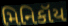
મિનિકૉય